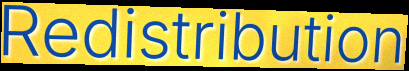
Redistribution